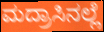
ಮದ್ರಾಸಿನಲ್ಲೆ